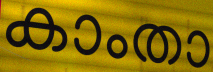
കാംതാ